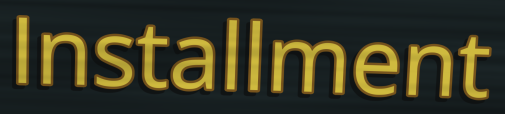
Installment